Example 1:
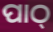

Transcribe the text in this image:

ପାଠ୍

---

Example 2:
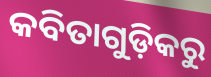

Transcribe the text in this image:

କବିତାଗୁଡ଼ିକରୁ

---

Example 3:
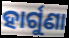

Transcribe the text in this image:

ହାର୍ଗୁଣା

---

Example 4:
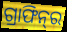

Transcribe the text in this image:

ଗ୍ରାଫିନ୍‌ର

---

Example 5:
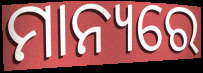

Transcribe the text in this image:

ମାନ୍ୟରେ